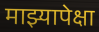
माझ्यापेक्षा